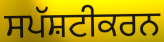
ਸਪੱਸ਼ਟੀਕਰਨ